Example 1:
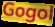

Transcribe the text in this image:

Gogol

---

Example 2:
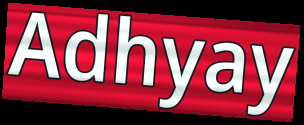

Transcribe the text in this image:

Adhyay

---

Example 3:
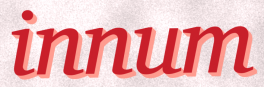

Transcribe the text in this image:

innum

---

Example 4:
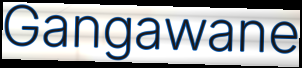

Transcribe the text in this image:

Gangawane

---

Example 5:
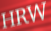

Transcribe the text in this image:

HRW